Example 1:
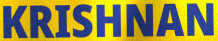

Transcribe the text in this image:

KRISHNAN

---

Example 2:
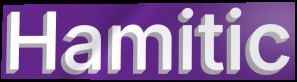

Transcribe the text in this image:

Hamitic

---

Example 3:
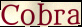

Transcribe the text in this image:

Cobra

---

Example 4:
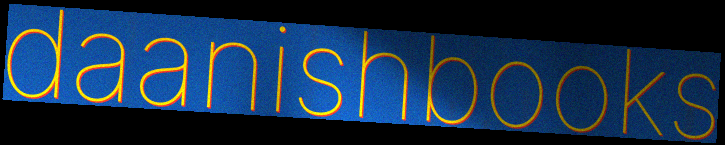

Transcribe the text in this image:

daanishbooks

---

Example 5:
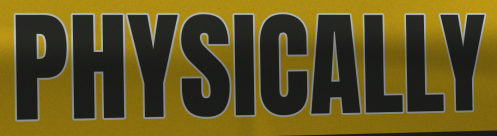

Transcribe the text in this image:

PHYSICALLY